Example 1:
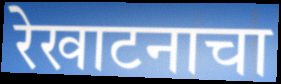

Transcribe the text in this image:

रेखाटनाचा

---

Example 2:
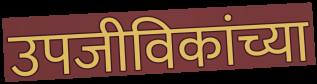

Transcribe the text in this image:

उपजीविकांच्या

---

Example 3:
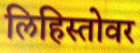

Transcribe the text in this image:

लिहिस्तोवर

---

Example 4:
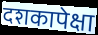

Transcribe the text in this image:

दशकापेक्षा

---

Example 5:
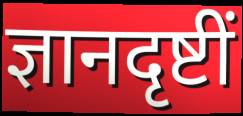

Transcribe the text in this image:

ज्ञानदृष्टीं